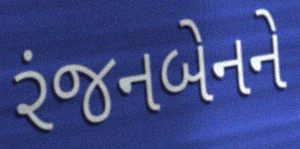
રંજનબેનને